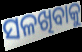
ସଳଖିବାକୁ